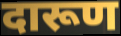
दारूण